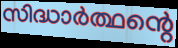
സിദ്ധാർത്ഥന്റെ